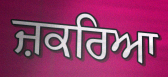
ਜ਼ਕਰਿਆ